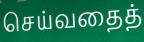
செய்வதைத்